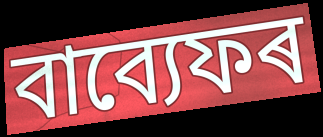
বাব্যেফৰ